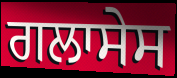
ਗਲਾਸੇਸ